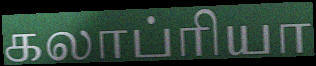
கலாப்ரியா